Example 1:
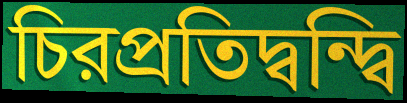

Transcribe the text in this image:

চিরপ্রতিদ্বন্দ্বি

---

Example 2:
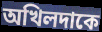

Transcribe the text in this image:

অখিলদাকে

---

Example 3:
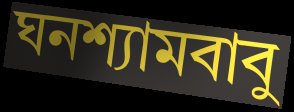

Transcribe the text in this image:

ঘনশ্যামবাবু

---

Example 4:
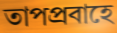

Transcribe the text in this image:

তাপপ্রবাহে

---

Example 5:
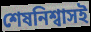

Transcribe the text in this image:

শেষনিশ্বাসই